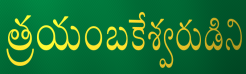
త్రయంబకేశ్వరుడిని